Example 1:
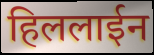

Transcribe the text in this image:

हिललाईन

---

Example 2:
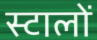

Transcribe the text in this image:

स्टालों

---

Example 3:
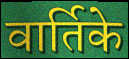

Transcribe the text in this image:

वार्तिके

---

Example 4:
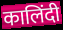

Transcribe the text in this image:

कालिंदी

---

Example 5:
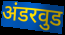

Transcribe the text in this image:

अंडरवुड